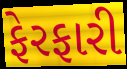
ફેરફારી